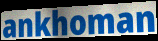
ankhoman